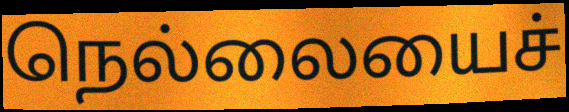
நெல்லையைச்